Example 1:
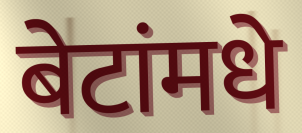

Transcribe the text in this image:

बेटांमधे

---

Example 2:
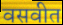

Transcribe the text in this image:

वसवीत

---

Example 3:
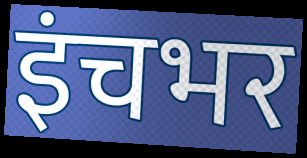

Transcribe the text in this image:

इंचभर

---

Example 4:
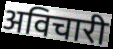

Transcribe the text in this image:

अविचारी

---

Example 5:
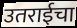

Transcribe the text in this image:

उतराईचा